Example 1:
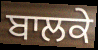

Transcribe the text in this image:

ਬਾਲਕੇ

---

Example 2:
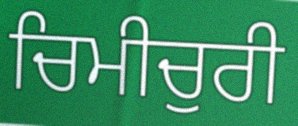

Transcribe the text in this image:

ਚਿਮੀਚੁਰੀ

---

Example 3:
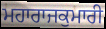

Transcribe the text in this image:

ਮਹਾਰਾਜਕੁਮਾਰੀ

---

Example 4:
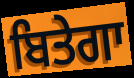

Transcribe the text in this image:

ਬਿਤੇਗਾ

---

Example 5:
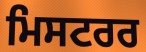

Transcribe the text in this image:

ਮਿਸਟਰਰ